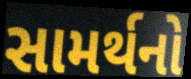
સામર્થનો